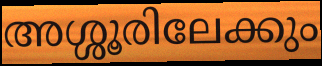
അശ്ശൂരിലേക്കും